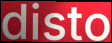
disto